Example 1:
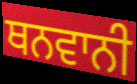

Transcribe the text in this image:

ਥਨਵਾਨੀ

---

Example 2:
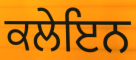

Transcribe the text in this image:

ਕਲੇਇਨ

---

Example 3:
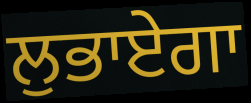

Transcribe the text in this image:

ਲੁਭਾਏਗਾ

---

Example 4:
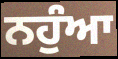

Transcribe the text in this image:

ਨਹੁੰਆ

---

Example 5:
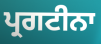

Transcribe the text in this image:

ਪ੍ਰਗਟੀਨਾ